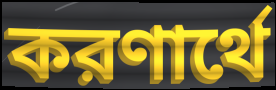
করণার্থে